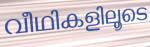
വീഥികളിലൂടെ